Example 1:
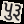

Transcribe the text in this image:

પુરૂ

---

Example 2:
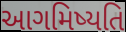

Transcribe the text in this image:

આગમિષ્યતિ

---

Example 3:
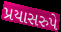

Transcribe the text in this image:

પ્રયાસરુપે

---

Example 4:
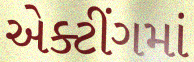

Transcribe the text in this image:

એક્ટીંગમાં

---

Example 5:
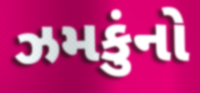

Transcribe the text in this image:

ઝમકુંનો